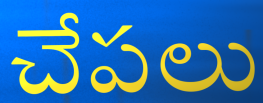
చేపలు